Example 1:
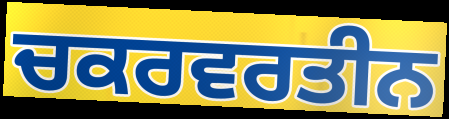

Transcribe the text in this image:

ਚਕਰਵਰਤੀਨ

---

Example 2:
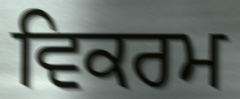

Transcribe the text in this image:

ਵਿਕਰਮ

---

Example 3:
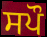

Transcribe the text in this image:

ਸਪੌ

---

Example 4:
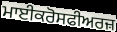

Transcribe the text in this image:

ਮਾਈਕਰੋਸਫੀਅਰਜ਼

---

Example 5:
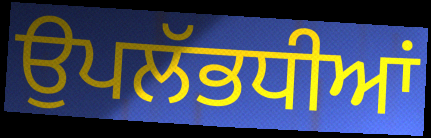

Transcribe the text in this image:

ਉਪਲੱਭਧੀਆਂ